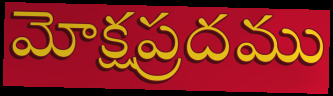
మోక్షప్రదము